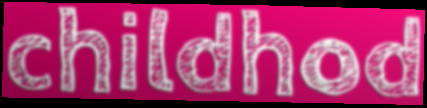
childhod